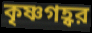
কৃষ্ণগহ্বর